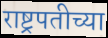
राष्ट्रपतीच्या